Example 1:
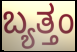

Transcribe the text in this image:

ಬ್ಯತ್ತಂ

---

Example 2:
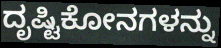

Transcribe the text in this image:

ದೃಷ್ಟಿಕೋನಗಳನ್ನು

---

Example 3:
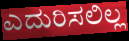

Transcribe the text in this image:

ಎದುರಿಸಲಿಲ್ಲ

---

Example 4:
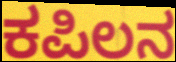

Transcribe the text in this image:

ಕಪಿಲನ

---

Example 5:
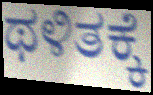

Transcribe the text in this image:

ಥಳಿತಕ್ಕೆ